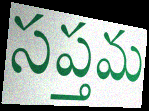
సప్తమ